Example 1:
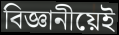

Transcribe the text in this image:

বিজ্ঞানীয়েই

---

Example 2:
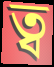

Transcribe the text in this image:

ত্ব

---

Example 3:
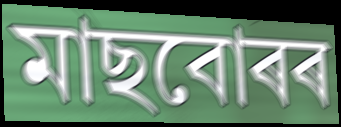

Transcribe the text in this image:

মাছবোৰৰ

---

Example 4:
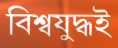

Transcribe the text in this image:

বিশ্বযুদ্ধই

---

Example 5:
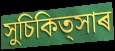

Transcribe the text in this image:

সুচিকিত্সাৰ